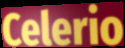
Celerio